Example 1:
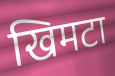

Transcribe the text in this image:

खिमटा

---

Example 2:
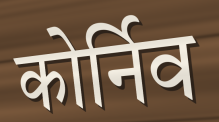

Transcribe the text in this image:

कोर्निव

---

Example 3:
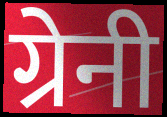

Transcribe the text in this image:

ग्रेनी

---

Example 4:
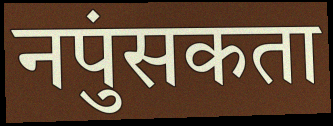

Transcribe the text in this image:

नपुंसकता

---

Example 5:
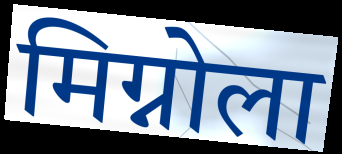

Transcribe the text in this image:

मिग्नोला